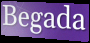
Begada